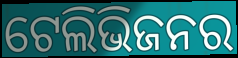
ଟେଲିଭିଜନର